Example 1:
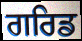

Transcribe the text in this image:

ਗਰਿਡ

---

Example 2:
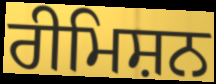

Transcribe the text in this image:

ਰੀਮਿਸ਼ਨ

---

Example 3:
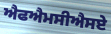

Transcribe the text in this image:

ਐਫਐਮਸੀਐਸਏ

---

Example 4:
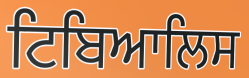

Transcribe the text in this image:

ਟਿਬਿਆਲਿਸ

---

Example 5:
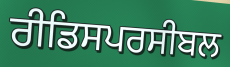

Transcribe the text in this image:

ਰੀਡਿਸਪਰਸੀਬਲ